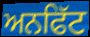
ਅਨਫਿੱਟ